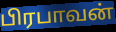
பிரபாவன்